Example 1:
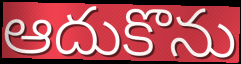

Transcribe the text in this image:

ఆదుకొను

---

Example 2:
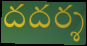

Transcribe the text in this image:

దదర్శ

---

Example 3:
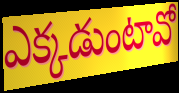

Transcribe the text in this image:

ఎక్కడుంటావో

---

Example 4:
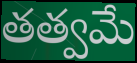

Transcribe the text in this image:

తత్వమే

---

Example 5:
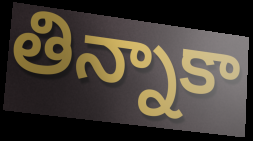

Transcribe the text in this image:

తిన్నాకా